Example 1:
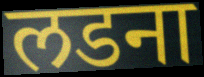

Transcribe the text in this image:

लडना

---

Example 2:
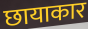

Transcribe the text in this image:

छायाकार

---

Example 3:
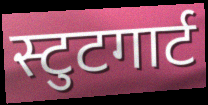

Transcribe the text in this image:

स्टुटगार्ट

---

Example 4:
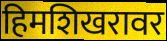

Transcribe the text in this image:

हिमशिखरावर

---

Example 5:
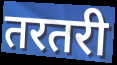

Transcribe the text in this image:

तरतरी